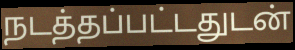
நடத்தப்பட்டதுடன்